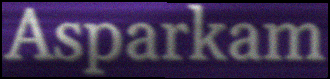
Asparkam